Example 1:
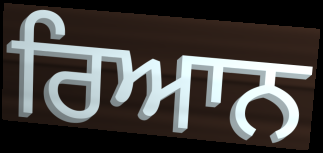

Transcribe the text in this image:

ਰਿਆਨ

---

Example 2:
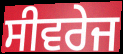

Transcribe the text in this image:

ਸੀਵਰੇਜ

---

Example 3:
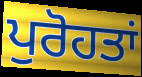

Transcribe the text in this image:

ਪੁਰੋਹਤਾਂ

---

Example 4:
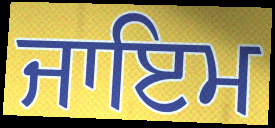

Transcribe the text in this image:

ਜਾਇਮ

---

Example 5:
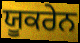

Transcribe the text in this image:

ਯੂਕਰੇਨ